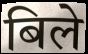
बिले